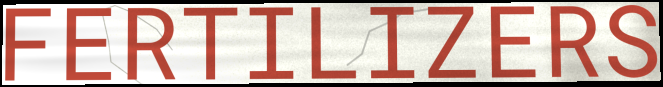
FERTILIZERS